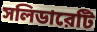
সলিডারেটি